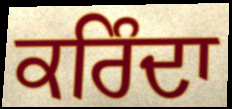
ਕਰਿੰਦਾ